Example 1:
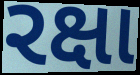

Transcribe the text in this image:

રક્ષા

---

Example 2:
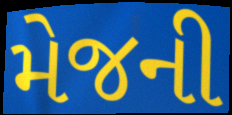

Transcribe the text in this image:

મેજની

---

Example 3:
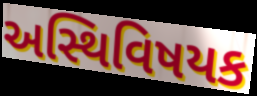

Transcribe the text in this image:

અસ્થિવિષયક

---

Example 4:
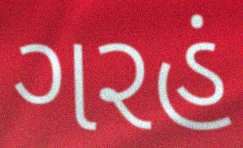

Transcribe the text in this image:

ગરહં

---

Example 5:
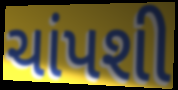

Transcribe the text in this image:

ચાંપશી